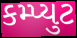
કમ્પ્યુટ